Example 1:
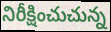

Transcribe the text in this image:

నిరీక్షించుచున్న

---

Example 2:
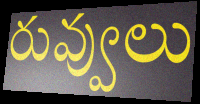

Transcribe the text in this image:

రువ్వులు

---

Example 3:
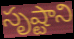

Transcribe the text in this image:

సృష్టాని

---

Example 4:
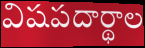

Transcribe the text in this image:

విషపదార్థాల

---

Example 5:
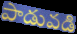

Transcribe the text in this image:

పాడువడి